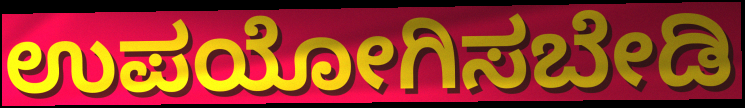
ಉಪಯೋಗಿಸಬೇಡಿ